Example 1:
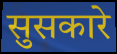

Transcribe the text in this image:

सुसकारे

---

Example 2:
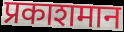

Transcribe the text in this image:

प्रकाशमान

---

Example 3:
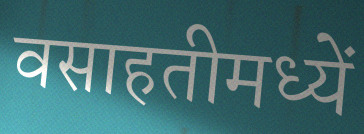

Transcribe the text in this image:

वसाहतीमध्यें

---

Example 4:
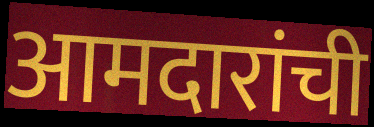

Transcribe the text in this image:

आमदारांची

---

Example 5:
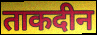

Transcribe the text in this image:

ताकदीन